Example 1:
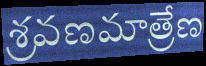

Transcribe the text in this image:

శ్రవణమాత్రేణ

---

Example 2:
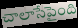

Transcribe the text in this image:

చాలాసేపైంది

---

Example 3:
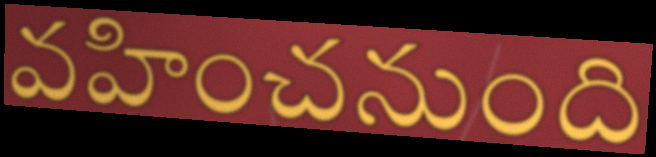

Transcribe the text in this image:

వహించనుంది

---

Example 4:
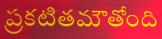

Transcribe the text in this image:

ప్రకటితమౌతోంది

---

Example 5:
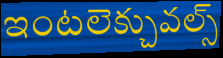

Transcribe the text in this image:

ఇంటలెక్చువల్స్